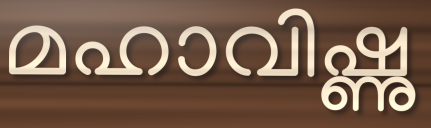
മഹാവിഷ്ണു